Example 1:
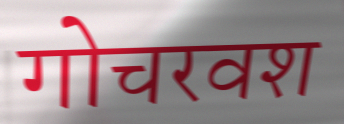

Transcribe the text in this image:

गोचरवश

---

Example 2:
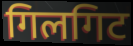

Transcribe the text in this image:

गिलगिट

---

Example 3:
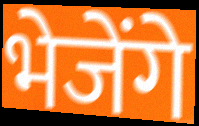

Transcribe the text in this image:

भेजेंगे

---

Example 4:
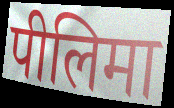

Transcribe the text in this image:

पीलिमा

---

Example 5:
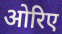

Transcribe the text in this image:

ओरिए